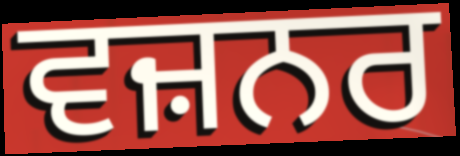
ਵਜ਼ਨਰ